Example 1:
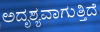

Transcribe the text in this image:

ಅದೃಶ್ಯವಾಗುತ್ತಿದೆ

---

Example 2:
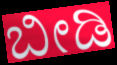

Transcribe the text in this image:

ಬೀಡಿ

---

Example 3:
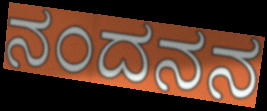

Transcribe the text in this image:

ನಂದನನ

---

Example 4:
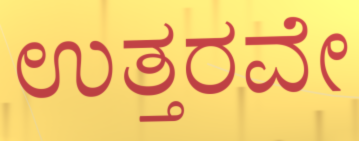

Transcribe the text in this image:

ಉತ್ತರವೇ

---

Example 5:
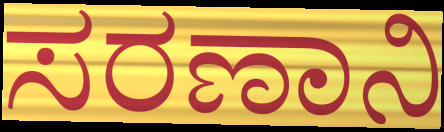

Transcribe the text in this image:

ಸರಣಾನಿ